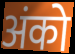
अंको